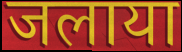
जलाया